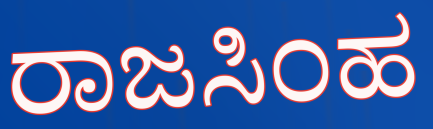
ರಾಜಸಿಂಹ